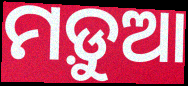
ମଡ଼ୁଆ